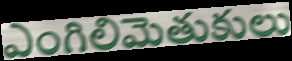
ఎంగిలిమెతుకులు